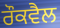
ਰੌਕਵੈਲ